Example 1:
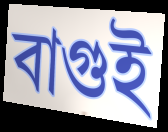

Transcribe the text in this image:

বাগুই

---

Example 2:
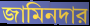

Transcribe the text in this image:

জামিনদার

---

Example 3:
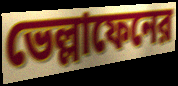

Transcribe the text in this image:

ভেল্লাফেনের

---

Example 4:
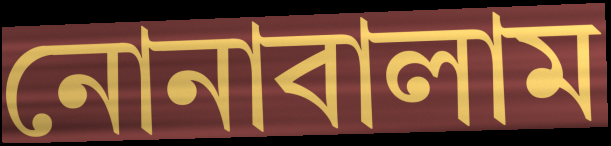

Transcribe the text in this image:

নোনাবালাম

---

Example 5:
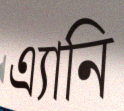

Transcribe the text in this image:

এ্যানি